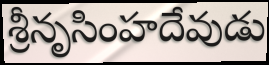
శ్రీనృసింహదేవుడు